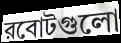
রবোটগুলো